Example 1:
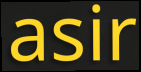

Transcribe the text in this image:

asir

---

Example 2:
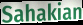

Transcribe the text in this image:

Sahakian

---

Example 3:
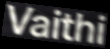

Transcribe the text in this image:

Vaithi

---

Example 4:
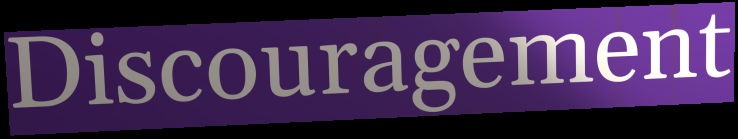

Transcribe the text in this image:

Discouragement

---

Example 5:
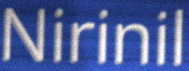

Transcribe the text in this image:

Nirinil